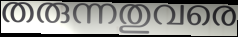
തരുന്നതുവരെ